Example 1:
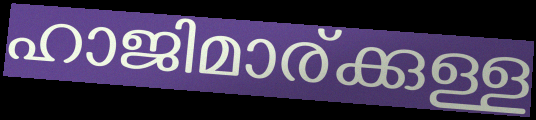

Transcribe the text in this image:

ഹാജിമാര്ക്കുള്ള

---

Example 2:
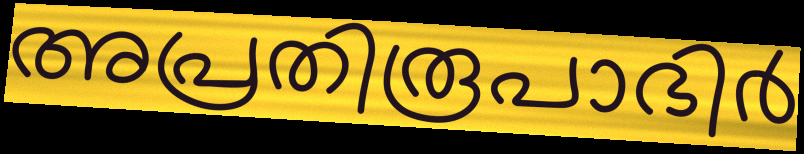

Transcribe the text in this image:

അപ്രതിരൂപാഭിർ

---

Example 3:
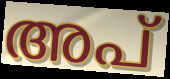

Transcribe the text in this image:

അപ്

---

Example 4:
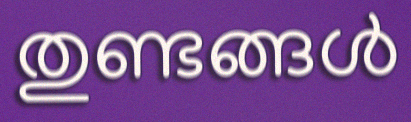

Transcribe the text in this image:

തുണ്ടങ്ങൾ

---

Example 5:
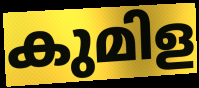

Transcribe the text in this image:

കുമിള